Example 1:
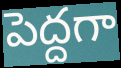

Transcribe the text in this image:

పెద్దగా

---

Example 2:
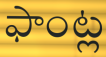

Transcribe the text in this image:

ఫాంట్ల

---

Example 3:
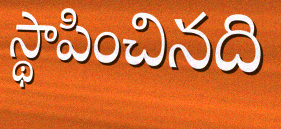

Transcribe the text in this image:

స్థాపించినది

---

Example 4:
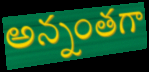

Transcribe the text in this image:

అన్నంతగా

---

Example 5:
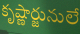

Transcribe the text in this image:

కృష్ణార్జునులే